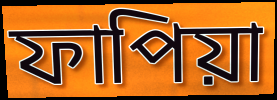
ফাপিয়া